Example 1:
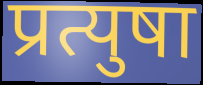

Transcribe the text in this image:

प्रत्युषा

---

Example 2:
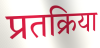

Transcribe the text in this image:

प्रतक्रिया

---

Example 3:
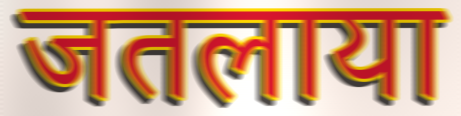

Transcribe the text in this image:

जतलाया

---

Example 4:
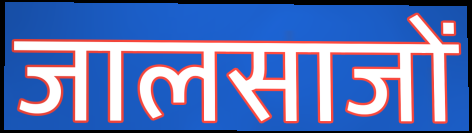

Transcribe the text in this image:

जालसाजों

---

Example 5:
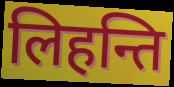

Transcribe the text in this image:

लिहन्ति